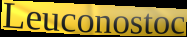
Leuconostoc